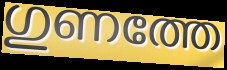
ഗുണത്തേ